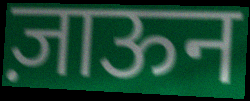
ज़ाऊन